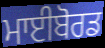
ਮਾਈਬੋਰਡ